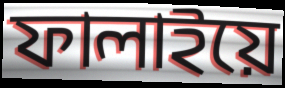
ফালাইয়ে